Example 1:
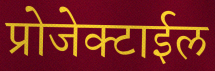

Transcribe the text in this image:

प्रोजेक्टाईल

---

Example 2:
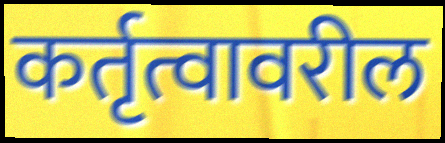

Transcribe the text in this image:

कर्तृत्वावरील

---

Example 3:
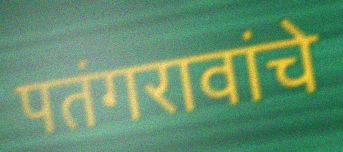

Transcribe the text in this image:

पतंगरावांचे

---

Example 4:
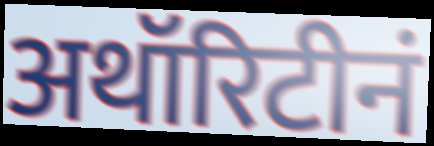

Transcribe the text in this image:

अथॉरिटीनं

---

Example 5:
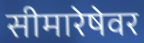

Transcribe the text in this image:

सीमारेषेवर